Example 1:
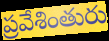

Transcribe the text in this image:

ప్రవేశింతురు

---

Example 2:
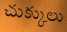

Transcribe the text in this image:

చుక్కులు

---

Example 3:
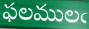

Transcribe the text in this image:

ఫలములఁ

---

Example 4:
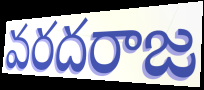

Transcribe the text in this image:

వరదరాజ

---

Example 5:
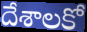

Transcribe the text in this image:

దేశాలకో